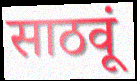
साठवूं